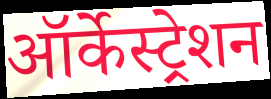
ऑर्केस्ट्रेशन